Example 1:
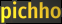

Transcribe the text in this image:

pichho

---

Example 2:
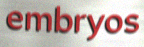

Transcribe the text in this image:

embryos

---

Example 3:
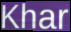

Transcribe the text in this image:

Khar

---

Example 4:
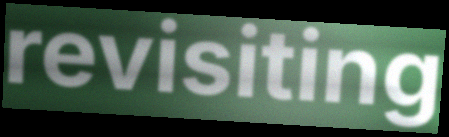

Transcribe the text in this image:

revisiting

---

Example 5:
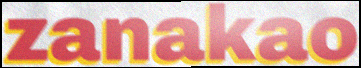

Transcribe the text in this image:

zanakao